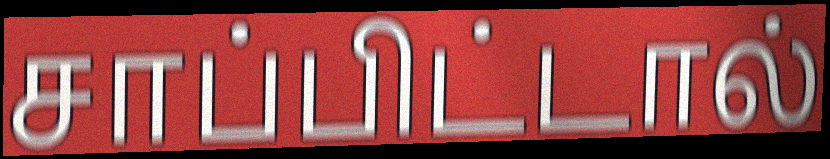
சாப்பிட்டால்